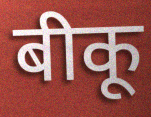
बीकू